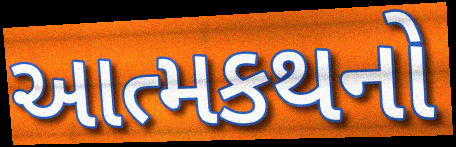
આત્મકથનો